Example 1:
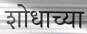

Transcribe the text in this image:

शोधाच्या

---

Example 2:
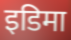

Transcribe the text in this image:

इडिमा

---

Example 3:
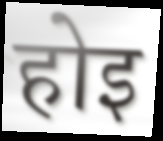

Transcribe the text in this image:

होइ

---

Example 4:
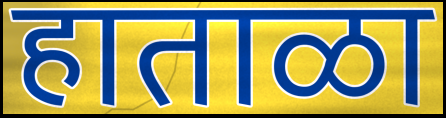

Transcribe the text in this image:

हाताळा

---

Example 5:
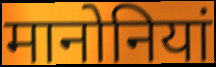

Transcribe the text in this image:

मानोनियां